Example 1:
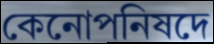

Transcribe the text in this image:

কেনোপনিষদে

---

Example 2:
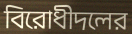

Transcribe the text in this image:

বিরোধীদলের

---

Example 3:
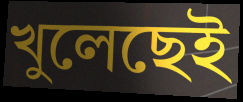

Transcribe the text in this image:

খুলেছেই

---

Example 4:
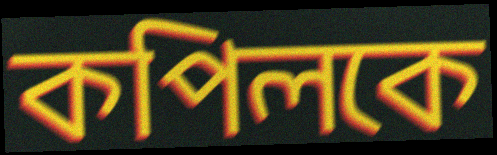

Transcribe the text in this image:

কপিলকে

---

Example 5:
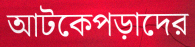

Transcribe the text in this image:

আটকেপড়াদের